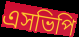
এসভিপি